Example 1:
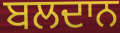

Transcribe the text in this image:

ਬਲਦਾਨ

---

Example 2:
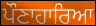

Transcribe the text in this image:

ਪੌਣਾਹਾਰਿਆ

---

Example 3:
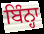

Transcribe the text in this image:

ਬਿੰਨ੍ਹਾ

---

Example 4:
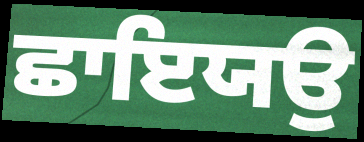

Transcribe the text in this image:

ਛਾਇਯਉ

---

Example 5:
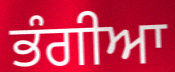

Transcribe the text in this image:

ਭੰਗੀਆ